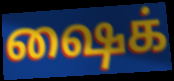
ஷைக்